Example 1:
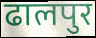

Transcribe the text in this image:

ढालपुर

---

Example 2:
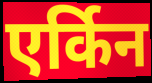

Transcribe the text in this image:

एर्किन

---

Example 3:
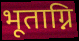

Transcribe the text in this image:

भूताग्नि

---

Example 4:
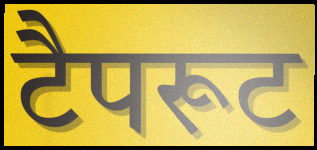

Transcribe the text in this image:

टैपरूट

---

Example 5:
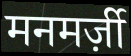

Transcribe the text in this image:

मनमर्ज़ी